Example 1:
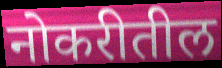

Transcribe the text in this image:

नोकरीतील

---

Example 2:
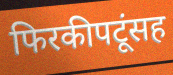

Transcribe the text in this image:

फिरकीपटूंसह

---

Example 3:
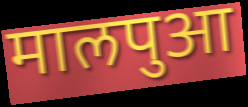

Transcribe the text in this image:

मालपुआ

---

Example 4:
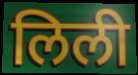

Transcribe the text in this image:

लिली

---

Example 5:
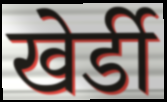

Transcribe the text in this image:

खेर्डी